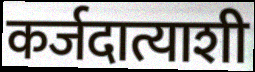
कर्जदात्याशी